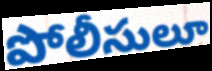
పోలీసులూ